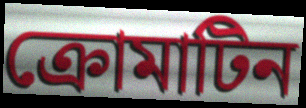
ক্রোমাটিন